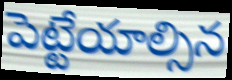
పెట్టేయాల్సిన